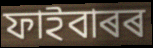
ফাইবাৰৰ